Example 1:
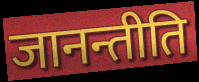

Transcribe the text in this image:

जानन्तीति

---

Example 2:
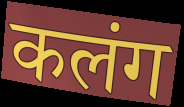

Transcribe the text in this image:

कलंग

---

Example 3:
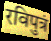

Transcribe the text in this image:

रविपुत्रं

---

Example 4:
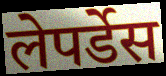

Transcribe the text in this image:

लेपर्डेस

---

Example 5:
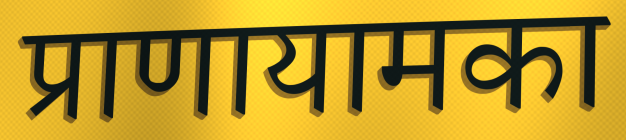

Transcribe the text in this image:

प्राणायामका